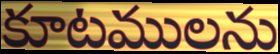
కూటములను